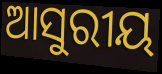
ଆସୁରୀୟ